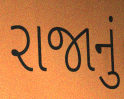
રાજાનું